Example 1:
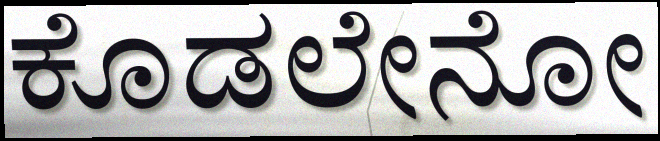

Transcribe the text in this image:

ಕೊಡಲೇನೋ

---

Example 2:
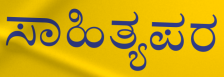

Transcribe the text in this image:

ಸಾಹಿತ್ಯಪರ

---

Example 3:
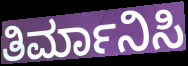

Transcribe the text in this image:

ತಿರ್ಮಾನಿಸಿ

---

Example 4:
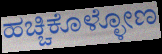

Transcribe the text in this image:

ಹಚ್ಚಿಕೊಳ್ಳೋಣ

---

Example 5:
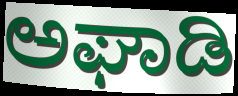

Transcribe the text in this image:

ಅಘಾಡಿ